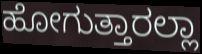
ಹೋಗುತ್ತಾರಲ್ಲಾ